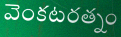
వెంకటరత్నం